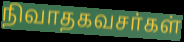
நிவாதகவசர்கள்